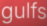
gulfs